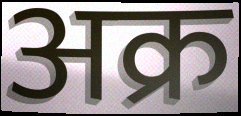
अक्र